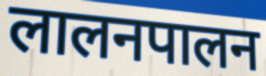
लालनपालन